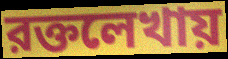
রক্তলেখায়